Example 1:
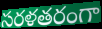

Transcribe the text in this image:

సరళతరంగా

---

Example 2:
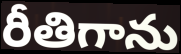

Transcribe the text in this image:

రీతిగాను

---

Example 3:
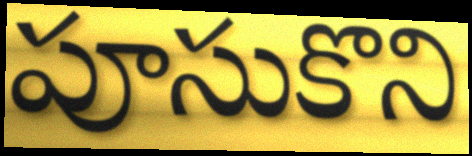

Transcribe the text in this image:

పూసుకొని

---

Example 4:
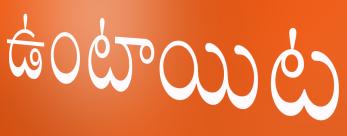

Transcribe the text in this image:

ఉంటాయిట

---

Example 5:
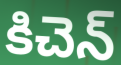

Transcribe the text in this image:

కిచెన్